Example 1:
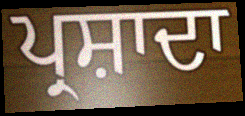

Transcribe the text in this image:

ਪ੍ਰਸ਼ਾਦਾ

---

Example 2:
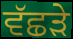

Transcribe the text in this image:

ਵੱਛੜੇ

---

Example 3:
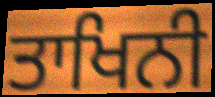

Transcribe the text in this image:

ਤਾਖਿਨੀ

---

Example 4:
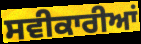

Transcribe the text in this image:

ਸਵੀਕਾਰੀਆਂ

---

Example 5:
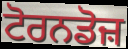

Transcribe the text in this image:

ਟੋਰਨਡੋਜ਼